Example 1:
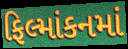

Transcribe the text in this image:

ફિલ્માંકનમાં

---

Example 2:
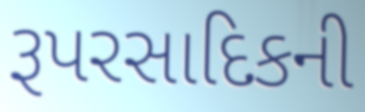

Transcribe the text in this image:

રૂપરસાદિકની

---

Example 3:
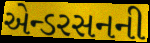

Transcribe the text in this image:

એન્ડરસનની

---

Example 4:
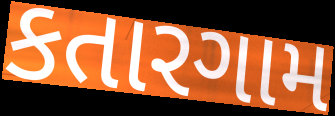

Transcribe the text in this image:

કતારગામ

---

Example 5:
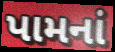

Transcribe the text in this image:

પામનાં